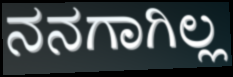
ನನಗಾಗಿಲ್ಲ